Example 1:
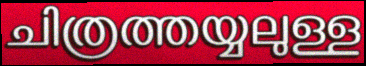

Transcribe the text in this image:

ചിത്രത്തയ്യലുള്ള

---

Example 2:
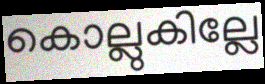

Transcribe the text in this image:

കൊല്ലുകില്ലേ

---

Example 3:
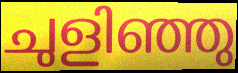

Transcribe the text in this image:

ചുളിഞ്ഞു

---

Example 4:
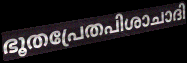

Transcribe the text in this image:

ഭൂതപ്രേതപിശാചാദി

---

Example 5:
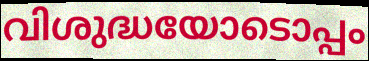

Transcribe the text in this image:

വിശുദ്ധയോടൊപ്പം